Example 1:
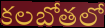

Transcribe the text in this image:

కలబోతలో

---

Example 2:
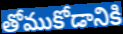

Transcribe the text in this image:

తోముకోడానికి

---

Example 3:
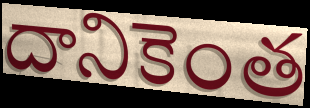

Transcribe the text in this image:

దానికెంత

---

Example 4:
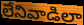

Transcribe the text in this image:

లేనివాడిలా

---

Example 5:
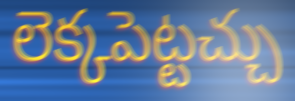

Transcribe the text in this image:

లెక్కపెట్టచ్చు